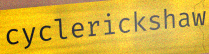
cyclerickshaw